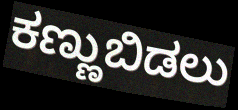
ಕಣ್ಣುಬಿಡಲು